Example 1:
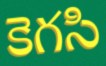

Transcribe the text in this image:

కెగసి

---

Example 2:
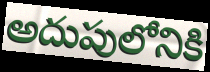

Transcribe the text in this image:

అదుపులోనికి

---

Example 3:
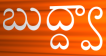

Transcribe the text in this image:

బుద్ద్వా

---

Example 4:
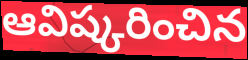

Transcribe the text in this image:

ఆవిష్కరించిన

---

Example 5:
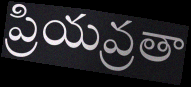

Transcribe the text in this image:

ప్రియవ్రతా